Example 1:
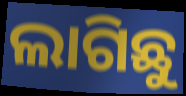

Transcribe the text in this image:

ଲାଗିଛୁ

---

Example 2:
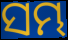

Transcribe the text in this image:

ସମ୍ଭ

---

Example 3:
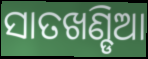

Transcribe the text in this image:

ସାତଖଣ୍ଡିଆ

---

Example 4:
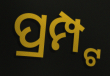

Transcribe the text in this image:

ପ୍ରମ୍ପ୍ଟ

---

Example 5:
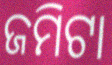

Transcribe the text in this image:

ଜମିଟା